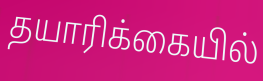
தயாரிக்கையில்